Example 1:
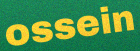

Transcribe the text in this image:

ossein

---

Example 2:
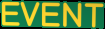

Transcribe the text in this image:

EVENT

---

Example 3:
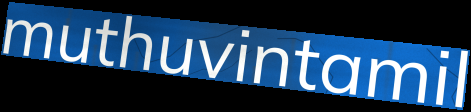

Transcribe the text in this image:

muthuvintamil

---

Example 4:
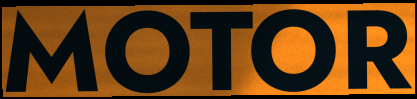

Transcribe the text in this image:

MOTOR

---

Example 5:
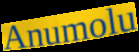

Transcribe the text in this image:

Anumolu